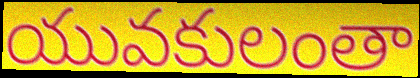
యువకులంతా